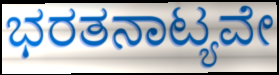
ಭರತನಾಟ್ಯವೇ